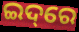
ଇଦ୍‌ରେ